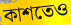
কাশতেও